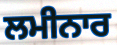
ਲਮੀਨਾਰ